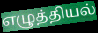
எழுத்தியல்